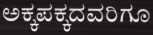
ಅಕ್ಕಪಕ್ಕದವರಿಗೂ